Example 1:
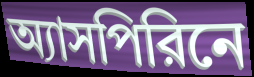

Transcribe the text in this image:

অ্যাসপিরিনে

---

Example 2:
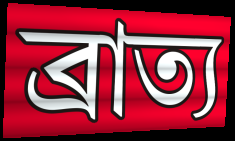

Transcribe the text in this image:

ব্রাত্য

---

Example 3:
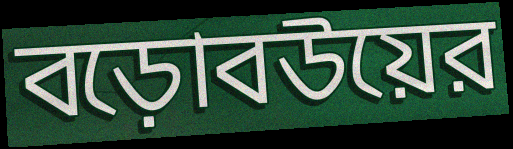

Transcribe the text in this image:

বড়োবউয়ের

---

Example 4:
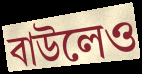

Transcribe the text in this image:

বাউলেও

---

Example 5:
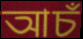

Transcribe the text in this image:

আচঁ